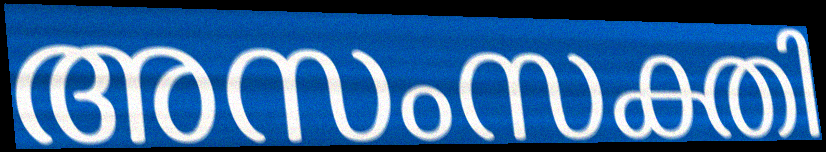
അസംസക്തി